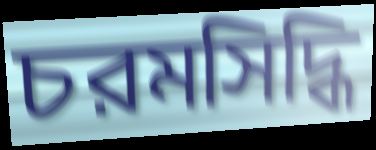
চরমসিদ্ধি